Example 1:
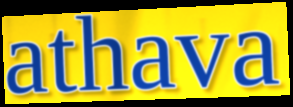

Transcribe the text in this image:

athava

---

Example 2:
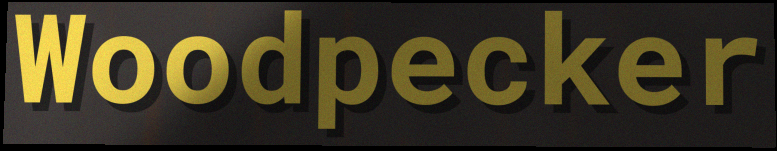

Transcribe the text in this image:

Woodpecker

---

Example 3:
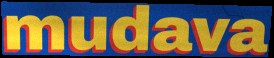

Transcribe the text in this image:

mudava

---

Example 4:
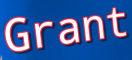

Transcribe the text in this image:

Grant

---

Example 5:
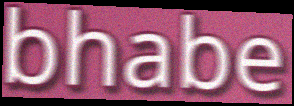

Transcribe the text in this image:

bhabe